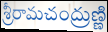
శ్రీరామచంద్రుణ్ణి